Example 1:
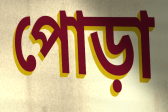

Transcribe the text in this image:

পোড়া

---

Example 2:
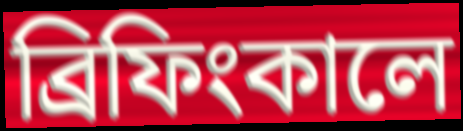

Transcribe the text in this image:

ব্রিফিংকালে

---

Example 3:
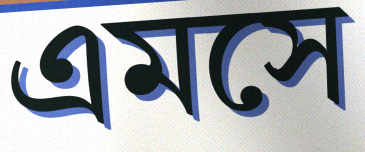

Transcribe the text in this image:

এমসে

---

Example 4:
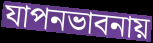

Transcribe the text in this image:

যাপনভাবনায়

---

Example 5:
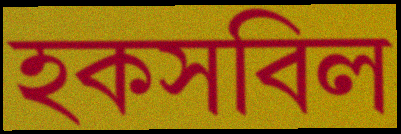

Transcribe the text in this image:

হকসবিল